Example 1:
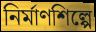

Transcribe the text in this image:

নির্মাণশিল্পে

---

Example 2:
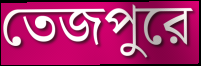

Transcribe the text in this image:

তেজপুরে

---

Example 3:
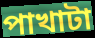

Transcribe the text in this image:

পাখাটা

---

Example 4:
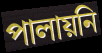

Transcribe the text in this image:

পালায়নি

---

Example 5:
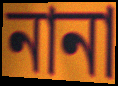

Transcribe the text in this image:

নানা